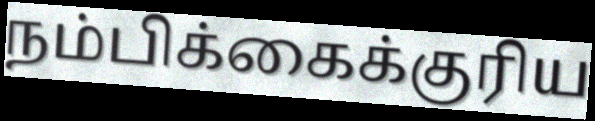
நம்பிக்கைக்குரிய